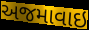
અજમાવાઇ